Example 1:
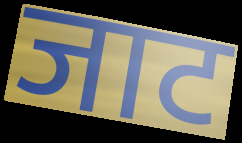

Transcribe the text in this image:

जाट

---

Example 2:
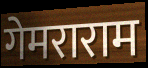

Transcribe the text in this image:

गेमराराम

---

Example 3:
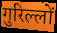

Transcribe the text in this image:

गुरिल्लों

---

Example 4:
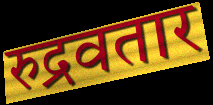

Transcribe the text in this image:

रुद्रवतार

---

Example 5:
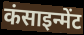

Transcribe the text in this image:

कंसाइन्मेंट